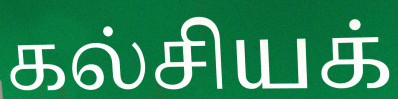
கல்சியக்